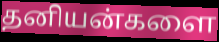
தனியன்களை